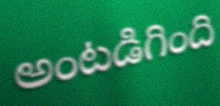
అంటడిగింది